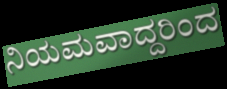
ನಿಯಮವಾದ್ದರಿಂದ